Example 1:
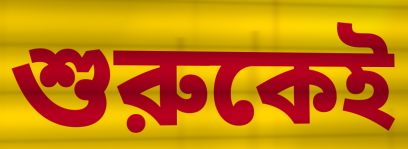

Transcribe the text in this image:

শুরুকেই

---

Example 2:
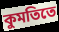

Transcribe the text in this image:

কুমতিতে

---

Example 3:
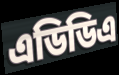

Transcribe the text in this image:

এডিডিএ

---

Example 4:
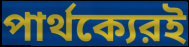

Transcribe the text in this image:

পার্থক্যেরই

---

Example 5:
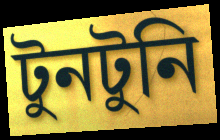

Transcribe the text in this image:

টুনটুনি